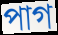
পাগ